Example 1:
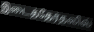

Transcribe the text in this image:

இடைத்தேர்தலில்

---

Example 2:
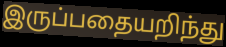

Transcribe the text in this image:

இருப்பதையறிந்து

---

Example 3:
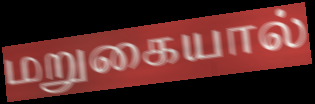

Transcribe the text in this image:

மறுகையால்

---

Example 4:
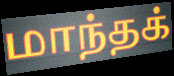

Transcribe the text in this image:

மாந்தக்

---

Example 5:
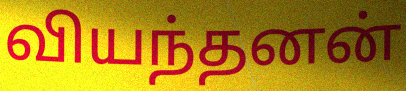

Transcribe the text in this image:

வியந்தனன்